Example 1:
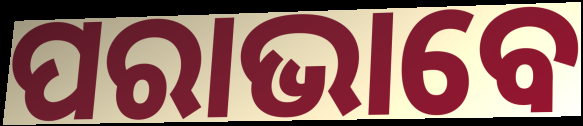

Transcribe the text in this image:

ପରାଭାବେ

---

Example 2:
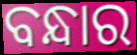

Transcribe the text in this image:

ବନ୍ଧାର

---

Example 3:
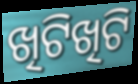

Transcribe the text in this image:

ଖିଟିଖିଟି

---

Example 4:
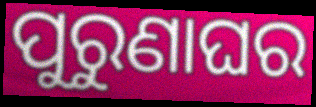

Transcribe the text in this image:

ପୁରୁଣାଘର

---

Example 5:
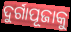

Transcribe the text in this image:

ଦୁର୍ଗାପୂଜାକୁ